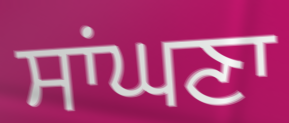
ਸਾਂਘਣਾ